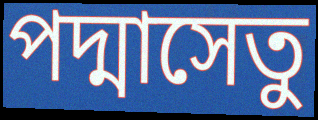
পদ্মাসেতু